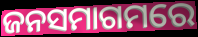
ଜନସମାଗମରେ